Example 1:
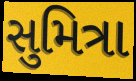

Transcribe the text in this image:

સુમિત્રા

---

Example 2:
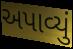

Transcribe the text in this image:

અપાવ્યું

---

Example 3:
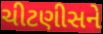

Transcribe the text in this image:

ચીટણીસને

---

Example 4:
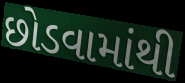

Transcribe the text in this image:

છોડવામાંથી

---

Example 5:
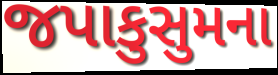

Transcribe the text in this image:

જપાકુસુમના